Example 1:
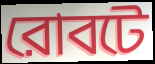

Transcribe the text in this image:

রোবটে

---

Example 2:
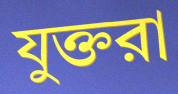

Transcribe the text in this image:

যুক্তরা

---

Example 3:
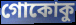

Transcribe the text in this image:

গোকোকু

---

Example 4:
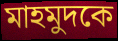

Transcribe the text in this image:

মাহমুদকে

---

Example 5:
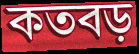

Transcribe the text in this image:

কতবড়